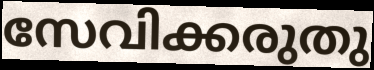
സേവിക്കരുതു